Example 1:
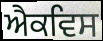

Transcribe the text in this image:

ਐਕਵਿਸ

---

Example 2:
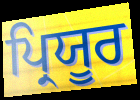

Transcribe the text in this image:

ਪ੍ਰਿਯੂਰ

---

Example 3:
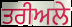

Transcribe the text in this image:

ਤਰੀਅਲੇ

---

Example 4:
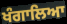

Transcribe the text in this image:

ਖੰਗਾਲਿਆ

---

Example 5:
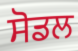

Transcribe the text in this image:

ਸੋਡਲ